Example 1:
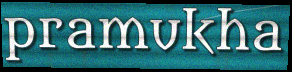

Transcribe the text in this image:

pramukha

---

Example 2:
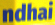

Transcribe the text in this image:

ndhai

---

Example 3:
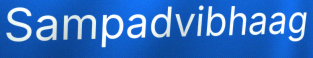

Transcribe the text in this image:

Sampadvibhaag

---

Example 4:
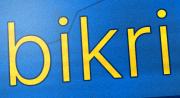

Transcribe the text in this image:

bikri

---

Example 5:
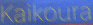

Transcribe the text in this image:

Kaikoura